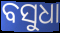
ବସୁଧା